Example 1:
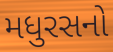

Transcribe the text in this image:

મધુરસનો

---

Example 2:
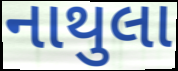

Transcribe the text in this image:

નાથુલા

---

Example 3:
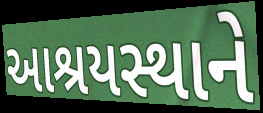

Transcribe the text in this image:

આશ્રયસ્થાને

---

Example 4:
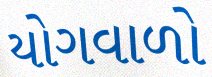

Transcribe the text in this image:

યોગવાળો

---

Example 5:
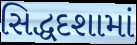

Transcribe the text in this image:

સિદ્ધદશામાં